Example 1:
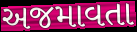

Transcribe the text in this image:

અજમાવતા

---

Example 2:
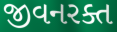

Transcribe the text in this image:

જીવનરક્ત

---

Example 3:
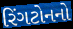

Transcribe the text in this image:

રિંગટોનનો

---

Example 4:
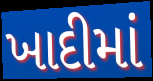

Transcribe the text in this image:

ખાદીમાં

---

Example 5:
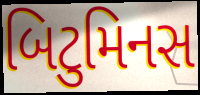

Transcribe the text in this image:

બિટુમિનસ